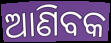
ଆଣିବକ